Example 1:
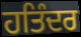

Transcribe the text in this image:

ਹਤਿੰਦਰ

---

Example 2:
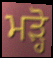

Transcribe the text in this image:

ਮੜ੍ਹੋ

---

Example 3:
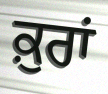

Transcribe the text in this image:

ਕ਼ੁਰਾਂ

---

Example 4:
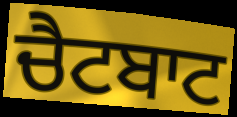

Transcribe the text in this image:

ਚੈਟਬਾਟ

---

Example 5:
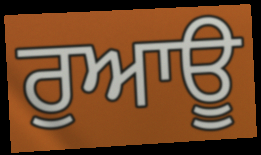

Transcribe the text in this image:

ਰੁਆਊ